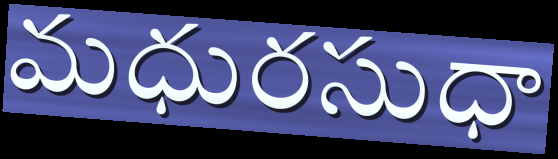
మధురసుధా